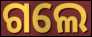
ଗଲେ